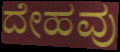
ದೇಹವು